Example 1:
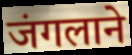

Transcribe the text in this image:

जंगलाने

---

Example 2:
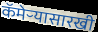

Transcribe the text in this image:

कॅमेऱ्यासारखी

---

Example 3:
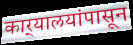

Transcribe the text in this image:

कार्यालयांपासून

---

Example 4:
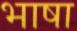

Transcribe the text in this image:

भाषा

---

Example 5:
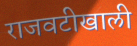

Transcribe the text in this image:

राजवटीखाली